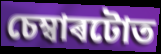
চেম্বাৰটোত